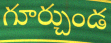
గూర్చుండ